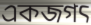
একজগৎ